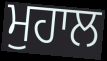
ਮੁਹਾਲ